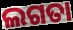
ଲଗତା